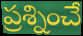
ప్రశ్నించే